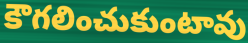
కౌగలించుకుంటావు